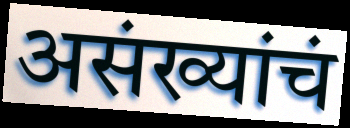
असंख्यांचं